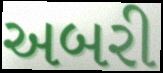
અબરી